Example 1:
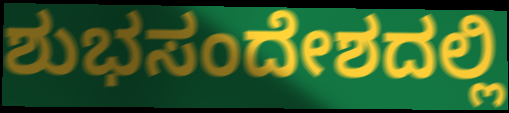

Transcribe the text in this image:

ಶುಭಸಂದೇಶದಲ್ಲಿ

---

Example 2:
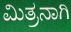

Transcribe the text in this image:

ಮಿತ್ರನಾಗಿ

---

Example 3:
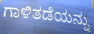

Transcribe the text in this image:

ಗಾಳಿತಡೆಯನ್ನು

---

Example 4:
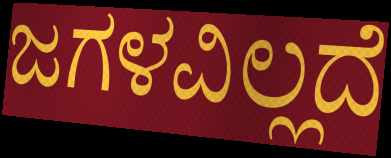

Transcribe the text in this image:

ಜಗಳವಿಲ್ಲದೆ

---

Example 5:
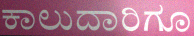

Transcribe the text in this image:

ಕಾಲುದಾರಿಗೂ